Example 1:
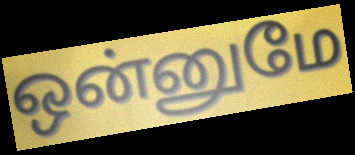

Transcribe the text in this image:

ஒன்னுமே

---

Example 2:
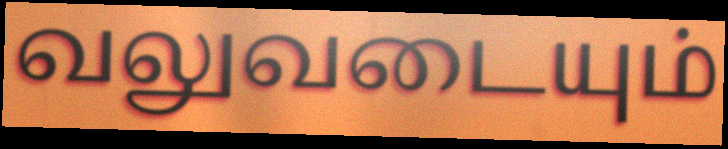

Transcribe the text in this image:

வலுவடையும்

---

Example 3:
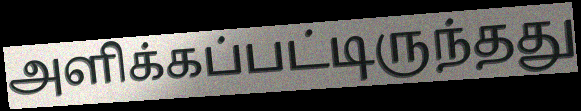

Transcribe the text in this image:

அளிக்கப்பட்டிருந்தது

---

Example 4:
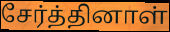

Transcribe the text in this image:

சேர்த்தினாள்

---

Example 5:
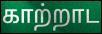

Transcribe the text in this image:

காற்றாட